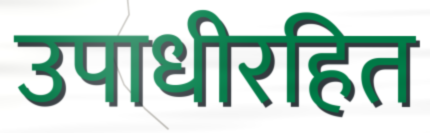
उपाधीरहित